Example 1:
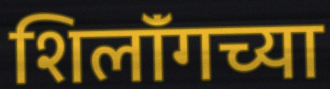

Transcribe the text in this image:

शिलॉंगच्या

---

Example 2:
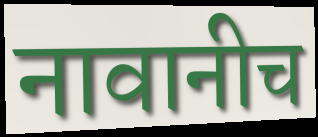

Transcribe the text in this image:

नावानीच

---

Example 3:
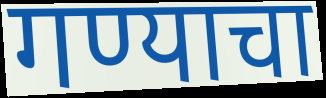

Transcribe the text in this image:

गण्याचा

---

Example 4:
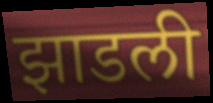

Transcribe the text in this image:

झाडली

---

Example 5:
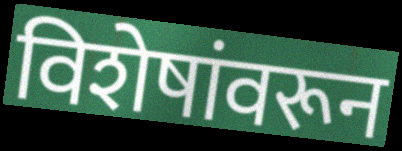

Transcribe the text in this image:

विशेषांवरून